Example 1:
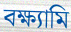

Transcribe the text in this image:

বক্ষ্যামি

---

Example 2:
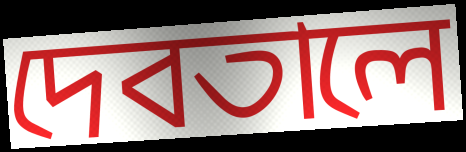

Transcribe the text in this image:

দেবতালে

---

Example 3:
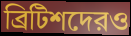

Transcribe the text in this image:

ব্রিটিশদেরও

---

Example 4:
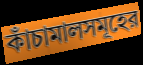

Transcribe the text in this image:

কাঁচামালসমূহের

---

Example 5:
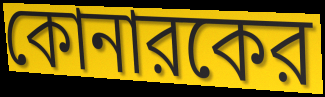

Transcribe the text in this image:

কোনারকের